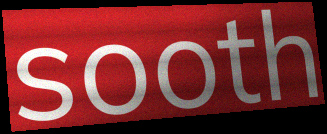
sooth